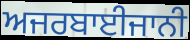
ਅਜਰਬਾਈਜਾਨੀ